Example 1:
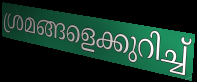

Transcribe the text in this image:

ശ്രമങ്ങളെക്കുറിച്ച്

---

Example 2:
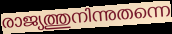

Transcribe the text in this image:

രാജ്യത്തുനിന്നുതന്നെ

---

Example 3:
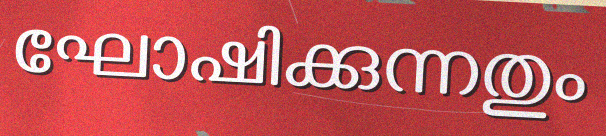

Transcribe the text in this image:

ഘോഷിക്കുന്നതും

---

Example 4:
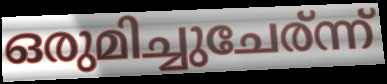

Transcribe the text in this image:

ഒരുമിച്ചുചേര്ന്ന്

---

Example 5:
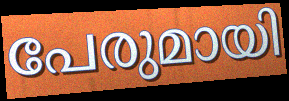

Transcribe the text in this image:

പേരുമായി